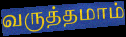
வருத்தமாம்